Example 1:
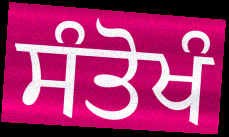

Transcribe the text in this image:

ਸੰਤੋਖੰ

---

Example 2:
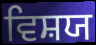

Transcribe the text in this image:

ਵਿਸ਼ਯ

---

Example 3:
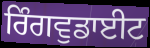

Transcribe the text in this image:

ਰਿੰਗਵੁਡਾਈਟ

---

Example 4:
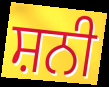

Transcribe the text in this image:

ਸ਼ਨੀ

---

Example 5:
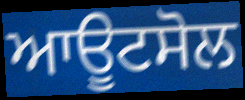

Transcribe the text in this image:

ਆਊਟਸੋਲ